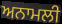
ਅਨਾਮਲੀ